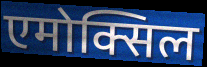
एमोक्सिल